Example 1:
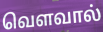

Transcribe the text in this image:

வெளவால்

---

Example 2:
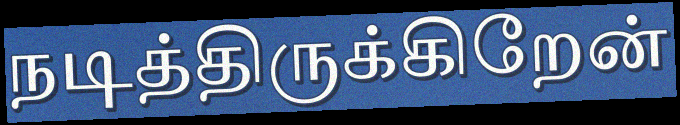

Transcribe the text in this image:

நடித்திருக்கிறேன்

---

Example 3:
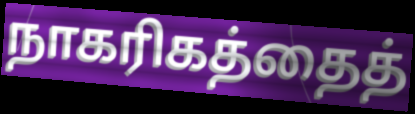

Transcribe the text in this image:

நாகரிகத்தைத்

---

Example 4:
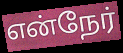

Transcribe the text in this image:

என்நேர்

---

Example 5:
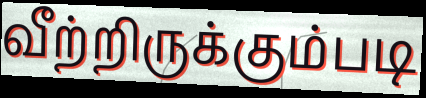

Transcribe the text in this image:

வீற்றிருக்கும்படி